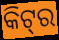
କିଟ୍‌ର